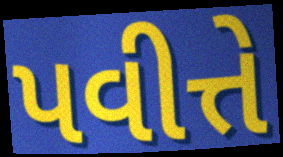
પવીત્તે